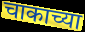
चाकाच्या